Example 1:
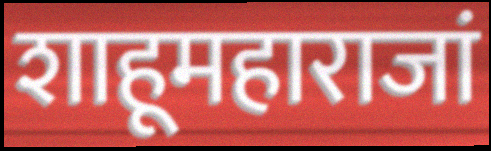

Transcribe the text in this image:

शाहूमहाराजां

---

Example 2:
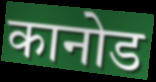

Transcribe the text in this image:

कानोड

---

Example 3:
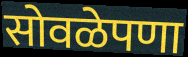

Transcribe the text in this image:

सोवळेपणा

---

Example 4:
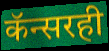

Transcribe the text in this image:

कॅन्सरही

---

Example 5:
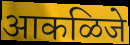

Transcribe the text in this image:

आकळिजे